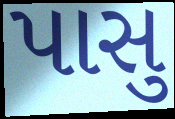
પાસુ